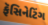
ફૅસિનેટિંગ